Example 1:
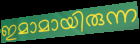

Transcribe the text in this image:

ഇമാമായിരുന്ന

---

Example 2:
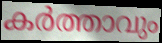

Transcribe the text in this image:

കർത്താവും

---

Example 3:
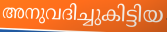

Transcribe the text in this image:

അനുവദിച്ചുകിട്ടിയ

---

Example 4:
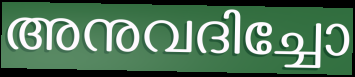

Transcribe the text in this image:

അനുവദിച്ചോ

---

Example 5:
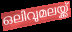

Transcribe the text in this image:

ഒലിവുമലയ്ക്ക്